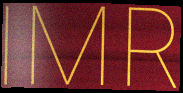
IMR